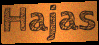
Hajas